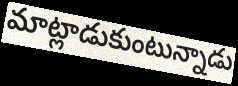
మాట్లాడుకుంటున్నాడు